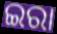
ଇରା